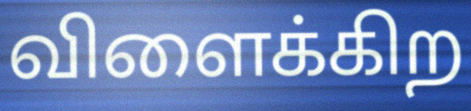
விளைக்கிற